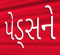
પેડ્સને